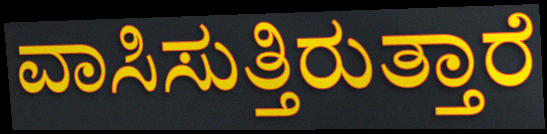
ವಾಸಿಸುತ್ತಿರುತ್ತಾರೆ